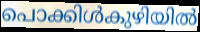
പൊക്കിൾകുഴിയിൽ